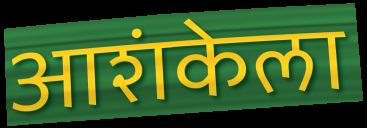
आशंकेला